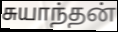
சுயாந்தன்